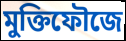
মুক্তিফৌজে